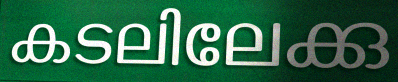
കടലിലേക്കു